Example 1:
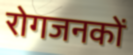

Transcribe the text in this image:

रोगजनकों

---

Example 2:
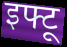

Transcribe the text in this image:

इफ्टू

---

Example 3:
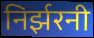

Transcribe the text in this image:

निर्झरनी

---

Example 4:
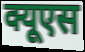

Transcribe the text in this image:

क्यूएस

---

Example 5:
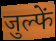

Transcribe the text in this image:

जुल्फें